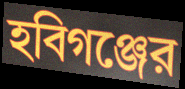
হবিগঞ্জের